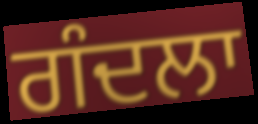
ਗੰਦਲਾ